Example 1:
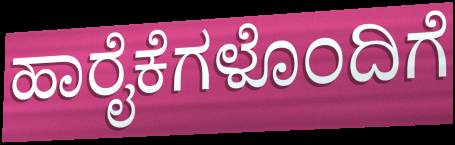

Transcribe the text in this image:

ಹಾರೈಕೆಗಳೊಂದಿಗೆ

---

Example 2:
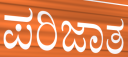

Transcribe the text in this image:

ಪರಿಜಾತ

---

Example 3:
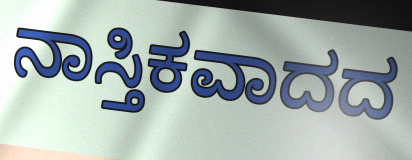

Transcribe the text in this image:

ನಾಸ್ತಿಕವಾದದ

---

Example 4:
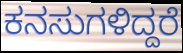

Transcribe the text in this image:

ಕನಸುಗಳಿದ್ದರೆ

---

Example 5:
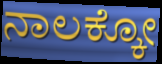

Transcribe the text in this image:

ನಾಲಕ್ಕೋ